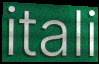
itali